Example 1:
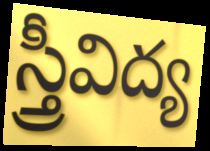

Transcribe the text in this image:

స్త్రీవిద్య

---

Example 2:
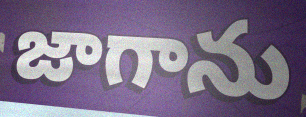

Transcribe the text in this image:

జాగాను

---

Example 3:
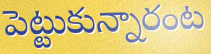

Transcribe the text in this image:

పెట్టుకున్నారంట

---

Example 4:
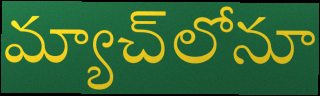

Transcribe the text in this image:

మ్యాచ్‌లోనూ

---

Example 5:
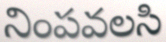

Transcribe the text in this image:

నింపవలసి